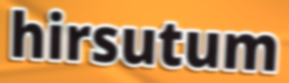
hirsutum